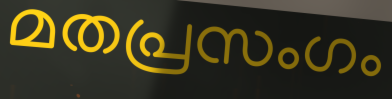
മതപ്രസംഗം